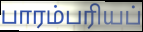
பாரம்பரியப்